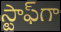
స్టాఫ్‌గా